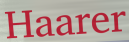
Haarer